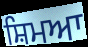
ਸ਼ਿਮਆ